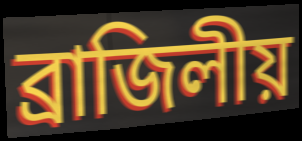
ব্রাজিলীয়